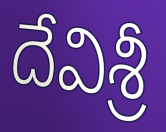
దేవిశ్రీ